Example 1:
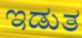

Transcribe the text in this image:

ಇಡುತ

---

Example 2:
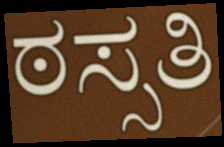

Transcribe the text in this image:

ಠಸ್ಸತಿ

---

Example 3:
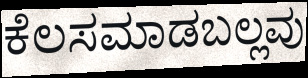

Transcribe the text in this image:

ಕೆಲಸಮಾಡಬಲ್ಲವು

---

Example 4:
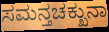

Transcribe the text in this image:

ಸಮನ್ತಚಕ್ಖುನಾ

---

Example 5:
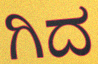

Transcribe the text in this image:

ಗಿದ